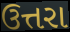
ઉત્તરા